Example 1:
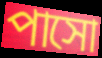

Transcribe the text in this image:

পাসো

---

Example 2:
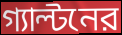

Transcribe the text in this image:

গ্যাল্টনের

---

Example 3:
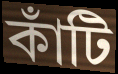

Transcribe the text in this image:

কাঁটি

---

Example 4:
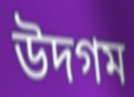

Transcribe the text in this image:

উদগম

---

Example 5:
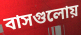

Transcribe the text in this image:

বাসগুলোয়